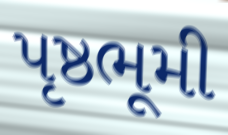
પૃષ્ઠભૂમી